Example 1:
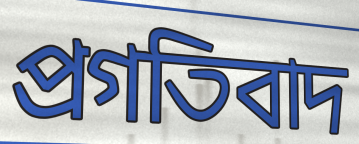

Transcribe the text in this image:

প্রগতিবাদ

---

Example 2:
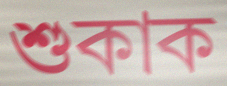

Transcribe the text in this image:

শুকাক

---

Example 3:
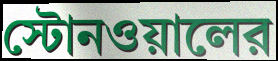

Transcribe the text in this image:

স্টোনওয়ালের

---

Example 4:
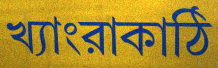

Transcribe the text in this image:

খ্যাংরাকাঠি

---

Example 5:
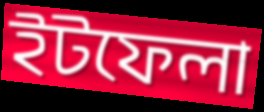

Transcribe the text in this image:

ইটফেলা